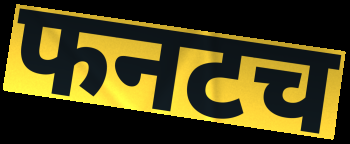
फनटच